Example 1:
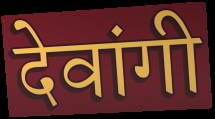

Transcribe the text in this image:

देवांगी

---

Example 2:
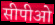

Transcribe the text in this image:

सीपीओ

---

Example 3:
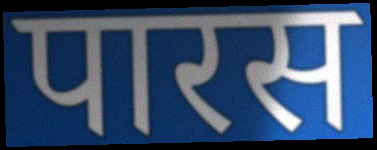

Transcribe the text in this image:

पारस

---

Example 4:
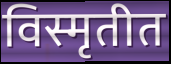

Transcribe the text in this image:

विस्मृतीत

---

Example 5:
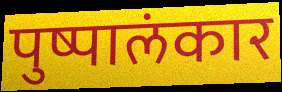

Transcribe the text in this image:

पुष्पालंकार